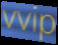
vvip